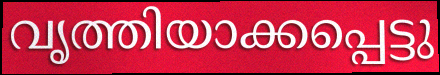
വൃത്തിയാക്കപ്പെട്ടു